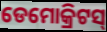
ଡେମୋକ୍ରିଟସ୍